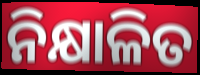
ନିକ୍ଷାଳିତ